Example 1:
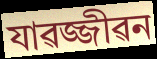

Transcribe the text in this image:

যাৱজ্জীৱন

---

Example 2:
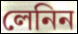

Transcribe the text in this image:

লেনিন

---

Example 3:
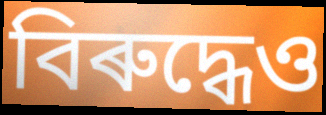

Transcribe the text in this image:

বিৰুদ্ধেও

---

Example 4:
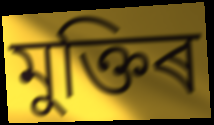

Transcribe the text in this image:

মুক্তিৰ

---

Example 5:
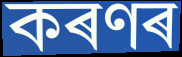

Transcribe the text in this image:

কৰণৰ